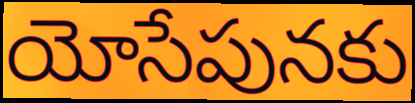
యోసేపునకు